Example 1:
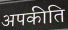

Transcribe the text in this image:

अपकीति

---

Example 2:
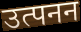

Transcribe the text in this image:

उत्पनन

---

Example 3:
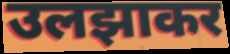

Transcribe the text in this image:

उलझाकर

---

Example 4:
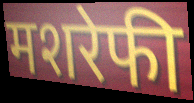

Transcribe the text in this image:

मशरेफी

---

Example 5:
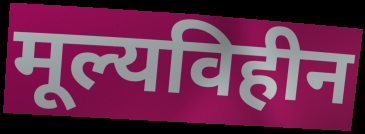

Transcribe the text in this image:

मूल्यविहीन